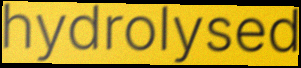
hydrolysed